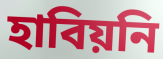
হাবিয়নি